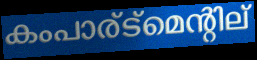
കംപാര്ട്മെന്റില്